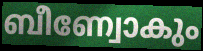
ബീണ്വോകും